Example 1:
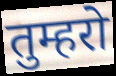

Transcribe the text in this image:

तुम्हरो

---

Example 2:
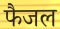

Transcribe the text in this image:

फैजल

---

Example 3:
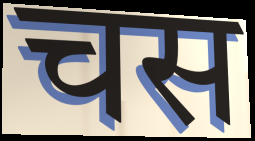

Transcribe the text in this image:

चस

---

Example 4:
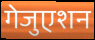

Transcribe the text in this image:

गेजुएशन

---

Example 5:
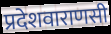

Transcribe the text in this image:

प्रदेशवाराणसी